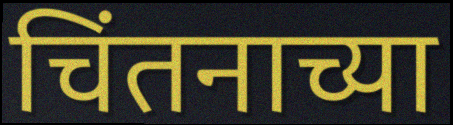
चिंतनाच्या